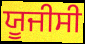
ਯੂਜੀਸੀ